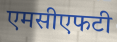
एमसीएफटी